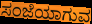
ಸಂಜೆಯಾಗುವ